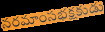
నరమాంసభక్షకుడు